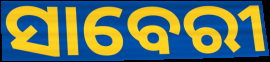
ସାବେରୀ